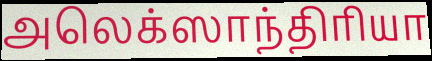
அலெக்ஸாந்திரியா